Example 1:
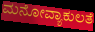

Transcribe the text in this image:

ಮನೋವ್ಯಾಕುಲತೆ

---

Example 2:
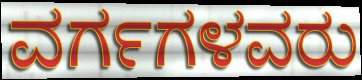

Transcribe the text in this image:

ವರ್ಗಗಳವರು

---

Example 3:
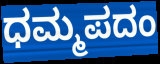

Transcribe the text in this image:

ಧಮ್ಮಪದಂ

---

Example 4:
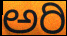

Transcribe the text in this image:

ಅರಿ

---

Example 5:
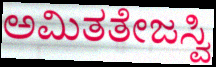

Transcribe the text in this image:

ಅಮಿತತೇಜಸ್ವಿ